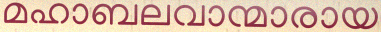
മഹാബലവാന്മാരായ